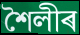
শৈলীৰ